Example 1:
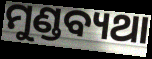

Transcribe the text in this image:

ମୁଣ୍ଡବ୍ୟଥା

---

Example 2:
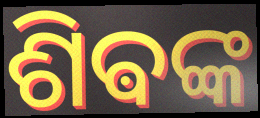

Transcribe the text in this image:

ଶିଵଙ୍କ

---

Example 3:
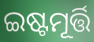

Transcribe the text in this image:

ଇଷ୍ଟମୂର୍ତ୍ତି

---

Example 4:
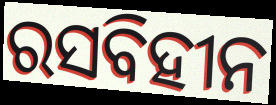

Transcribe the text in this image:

ରସବିହୀନ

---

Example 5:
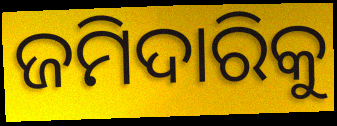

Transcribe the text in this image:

ଜମିଦାରିକୁ